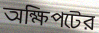
অক্ষিপটের